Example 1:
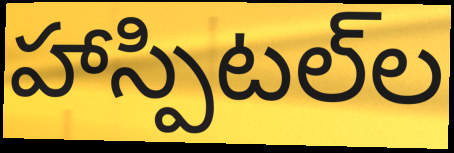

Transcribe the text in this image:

హాస్పిటల్‌ల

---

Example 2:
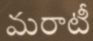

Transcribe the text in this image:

మరాటీ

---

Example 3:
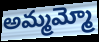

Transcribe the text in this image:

అమ్మమ్మో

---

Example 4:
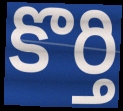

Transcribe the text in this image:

కొర్తి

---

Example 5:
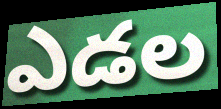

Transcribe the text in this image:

ఎడల